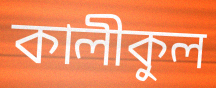
কালীকুল